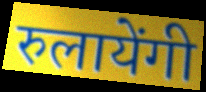
रुलायेंगी